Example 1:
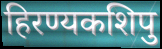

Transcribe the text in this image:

हिरण्यकशिपु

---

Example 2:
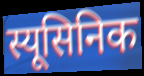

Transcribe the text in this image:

स्यूसिनिक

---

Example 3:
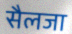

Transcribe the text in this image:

सैलजा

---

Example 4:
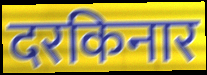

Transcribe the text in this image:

दरकिनार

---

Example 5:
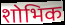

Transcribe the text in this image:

शोभिक